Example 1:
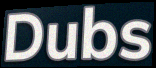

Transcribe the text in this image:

Dubs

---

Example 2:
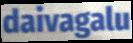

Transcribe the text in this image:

daivagalu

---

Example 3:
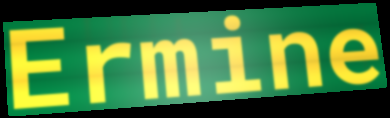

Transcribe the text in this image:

Ermine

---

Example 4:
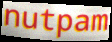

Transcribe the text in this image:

nutpam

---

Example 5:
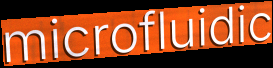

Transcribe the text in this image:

microfluidic